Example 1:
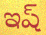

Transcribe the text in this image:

ఇష్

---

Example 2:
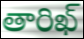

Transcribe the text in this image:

తారిఖ్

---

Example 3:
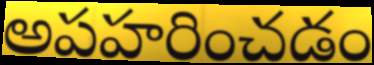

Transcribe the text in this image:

అపహరించడం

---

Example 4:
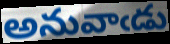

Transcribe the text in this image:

అనువాఁడు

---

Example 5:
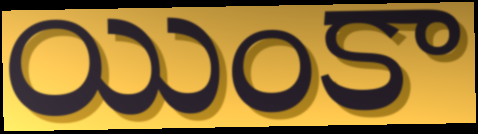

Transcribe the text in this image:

యింకా